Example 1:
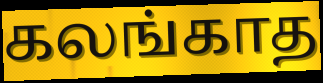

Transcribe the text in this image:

கலங்காத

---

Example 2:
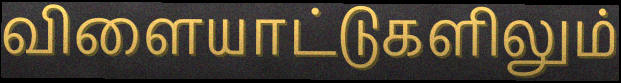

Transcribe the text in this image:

விளையாட்டுகளிலும்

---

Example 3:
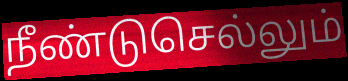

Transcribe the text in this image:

நீண்டுசெல்லும்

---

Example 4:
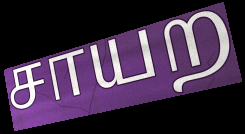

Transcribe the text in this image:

சாயற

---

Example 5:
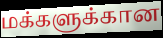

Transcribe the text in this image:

மக்களுக்கான